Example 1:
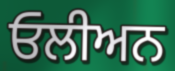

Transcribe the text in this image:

ਓਲੀਅਨ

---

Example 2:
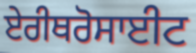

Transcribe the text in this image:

ਏਰੀਥਰੋਸਾਈਟ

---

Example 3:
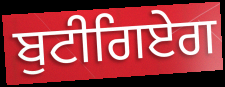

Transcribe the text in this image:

ਬੁਟੀਗਿਏਗ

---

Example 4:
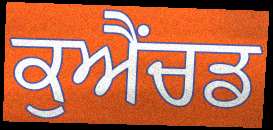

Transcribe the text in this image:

ਕੁਐਂਚਡ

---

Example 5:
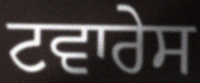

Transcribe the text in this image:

ਟਵਾਰੇਸ